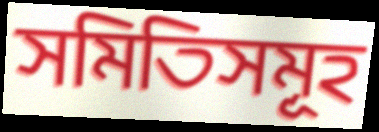
সমিতিসমূহ